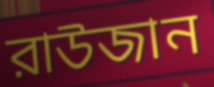
রাউজান